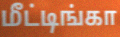
மீட்டிங்கா